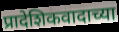
प्रादेशिकवादाच्या